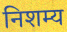
निशम्य